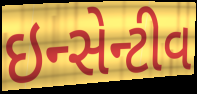
ઇન્સેન્ટીવ